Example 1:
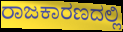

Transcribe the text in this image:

ರಾಜಕಾರಣದಲ್ಲಿ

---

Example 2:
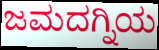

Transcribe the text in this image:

ಜಮದಗ್ನಿಯ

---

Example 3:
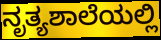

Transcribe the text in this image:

ನೃತ್ಯಶಾಲೆಯಲ್ಲಿ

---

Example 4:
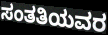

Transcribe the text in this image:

ಸಂತತಿಯವರ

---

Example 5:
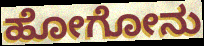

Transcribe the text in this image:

ಹೋಗೋನು